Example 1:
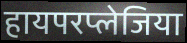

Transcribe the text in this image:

हायपरप्लेजिया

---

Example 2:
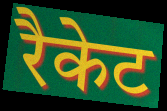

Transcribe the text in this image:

रैकेट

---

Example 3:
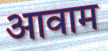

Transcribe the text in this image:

आवाम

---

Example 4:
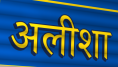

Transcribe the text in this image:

अलीशा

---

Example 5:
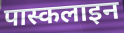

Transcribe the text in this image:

पास्कलाइन